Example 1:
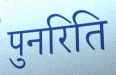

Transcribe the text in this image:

पुनरिति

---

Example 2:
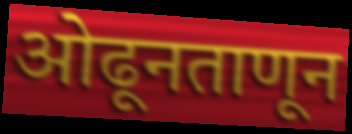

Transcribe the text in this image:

ओढूनताणून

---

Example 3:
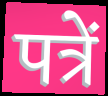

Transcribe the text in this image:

पत्रें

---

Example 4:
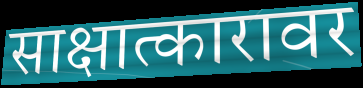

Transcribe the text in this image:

साक्षात्कारावर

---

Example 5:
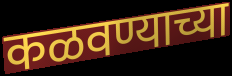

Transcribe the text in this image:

कळवण्याच्या